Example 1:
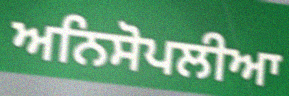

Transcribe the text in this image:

ਅਨਿਸੋਪਲੀਆ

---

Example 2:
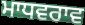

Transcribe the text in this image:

ਮਾਧਵਰਾਵ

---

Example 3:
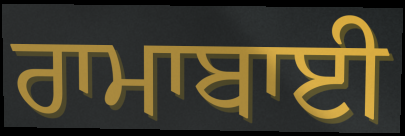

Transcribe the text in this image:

ਰਾਮਾਬਾਈ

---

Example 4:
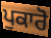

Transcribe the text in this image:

ਪੁਕਾਰੋ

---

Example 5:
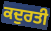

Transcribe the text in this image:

ਕਦੁਰਤੀ